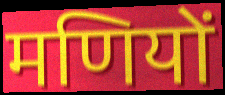
मणियों